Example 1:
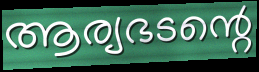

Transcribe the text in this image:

ആര്യഭടന്റെ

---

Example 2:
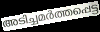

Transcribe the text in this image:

അടിച്ചമർത്തപ്പെട്ട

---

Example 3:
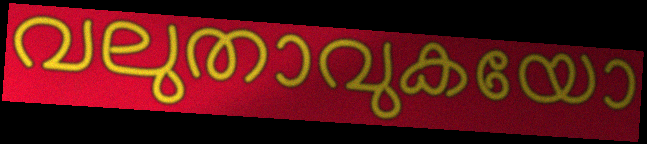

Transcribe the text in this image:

വലുതാവുകയോ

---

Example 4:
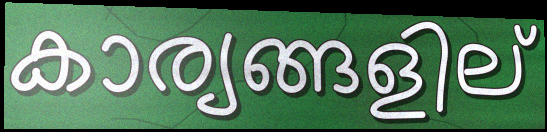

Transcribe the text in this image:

കാര്യങ്ങളില്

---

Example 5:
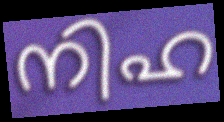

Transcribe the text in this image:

നിഹ